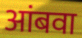
आंबवा